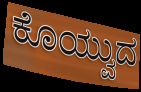
ಕೊಯ್ವುದ